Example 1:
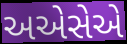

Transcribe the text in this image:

અએસેએ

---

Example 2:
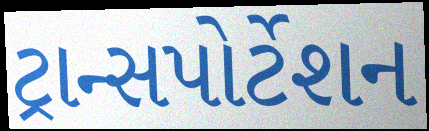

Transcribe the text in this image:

ટ્રાન્સપોર્ટેશન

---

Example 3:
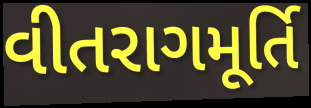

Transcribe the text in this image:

વીતરાગમૂર્તિ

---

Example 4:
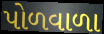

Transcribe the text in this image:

પોળવાળા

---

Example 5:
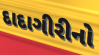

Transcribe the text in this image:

દાદાગીરીનો